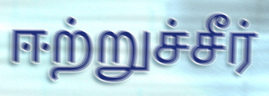
ஈற்றுச்சீர்